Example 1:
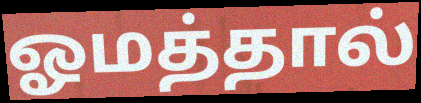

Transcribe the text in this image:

ஓமத்தால்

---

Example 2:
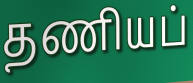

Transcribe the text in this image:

தணியப்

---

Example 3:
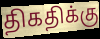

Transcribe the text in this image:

திகதிக்கு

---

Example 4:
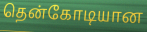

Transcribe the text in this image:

தென்கோடியான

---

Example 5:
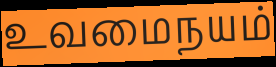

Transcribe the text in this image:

உவமைநயம்